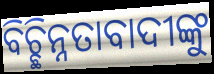
ବିଚ୍ଛିନ୍ନତାବାଦୀଙ୍କୁ